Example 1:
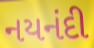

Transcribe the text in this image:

નયનંદી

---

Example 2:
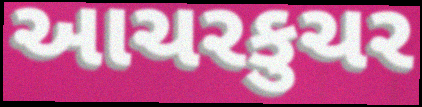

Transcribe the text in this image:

આચરકુચર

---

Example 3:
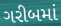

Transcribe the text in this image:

ગરીબમાં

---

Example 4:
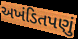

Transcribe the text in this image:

અખંડિતપણું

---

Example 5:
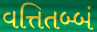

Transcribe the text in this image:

વત્તિતબ્બં